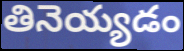
తినెయ్యడం